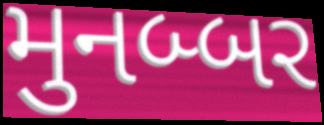
મુનબ્બર